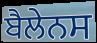
ਬੈਲੇਨਸ